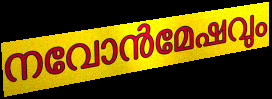
നവോൻമേഷവും